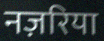
नज़रिया